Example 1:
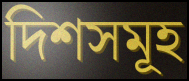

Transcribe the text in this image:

দিশসমূহ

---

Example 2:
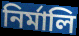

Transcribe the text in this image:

নিৰ্মালি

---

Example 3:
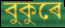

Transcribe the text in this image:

বুকুৰে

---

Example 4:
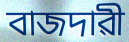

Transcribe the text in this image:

বাজদাৱী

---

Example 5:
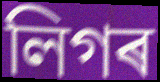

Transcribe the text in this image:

লিগৰ